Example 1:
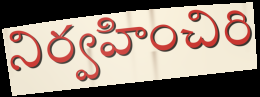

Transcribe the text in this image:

నిర్వహించిరి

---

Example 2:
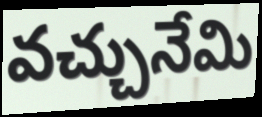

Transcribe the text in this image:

వచ్చునేమి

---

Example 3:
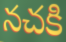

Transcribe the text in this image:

నచకి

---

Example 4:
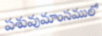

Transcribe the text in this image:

పశువుమాంసములో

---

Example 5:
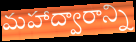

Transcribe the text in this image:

మహాద్వారాన్ని